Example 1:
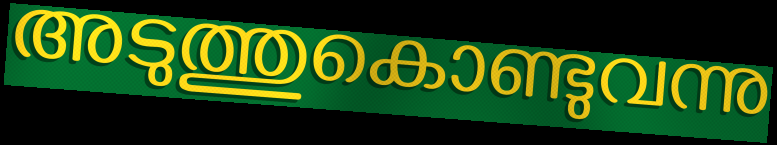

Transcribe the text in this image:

അടുത്തുകൊണ്ടുവന്നു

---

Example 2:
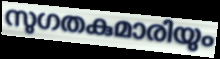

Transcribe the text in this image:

സുഗതകുമാരിയും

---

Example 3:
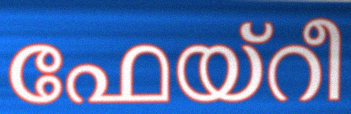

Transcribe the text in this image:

ഫേയ്റീ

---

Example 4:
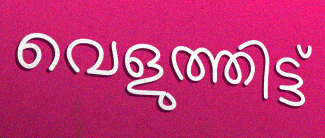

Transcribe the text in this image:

വെളുത്തിട്ട്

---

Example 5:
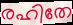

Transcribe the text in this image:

രഹിതേ